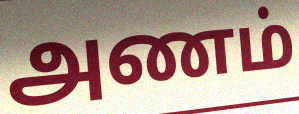
அணம்